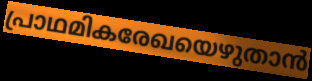
പ്രാഥമികരേഖയെഴുതാൻ